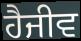
ਹੈਜੀਵ